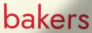
bakers